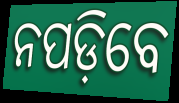
ନପଡ଼ିବେ